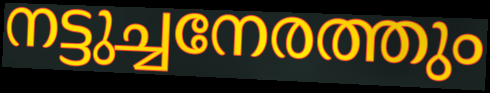
നട്ടുച്ചനേരത്തും